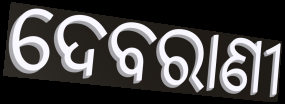
ଦେବରାଣୀ